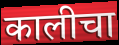
कालीचा